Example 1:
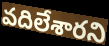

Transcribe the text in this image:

వదిలేశారని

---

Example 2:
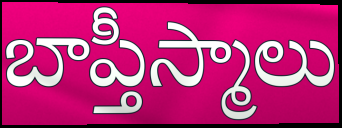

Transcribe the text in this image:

బాప్తీస్మాలు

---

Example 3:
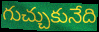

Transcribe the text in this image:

గుచ్చుకునేది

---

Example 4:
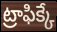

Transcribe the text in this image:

ట్రాఫిక్కే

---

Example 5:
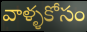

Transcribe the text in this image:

వాళ్ళకోసం